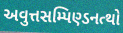
અવુત્તસમ્પિણ્ડનત્થો